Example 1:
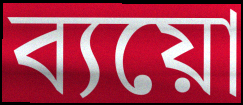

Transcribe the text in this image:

ব্যয়ো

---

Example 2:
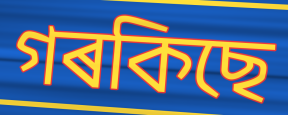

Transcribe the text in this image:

গৰকিছে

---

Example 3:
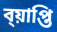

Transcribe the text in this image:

ব্য়াপ্তি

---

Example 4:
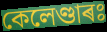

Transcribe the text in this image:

কেলেণ্ডাৰঃ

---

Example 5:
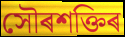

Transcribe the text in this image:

সৌৰশক্তিৰ